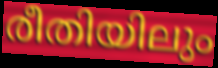
രീതിയിലും